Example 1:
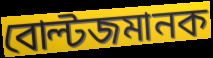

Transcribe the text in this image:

বোল্টজমানক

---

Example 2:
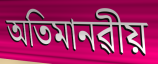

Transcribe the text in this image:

অতিমানৱীয়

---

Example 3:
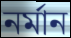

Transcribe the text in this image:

নৰ্মান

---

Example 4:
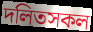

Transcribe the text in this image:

দলিতসকল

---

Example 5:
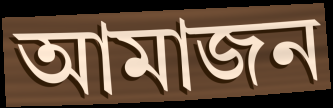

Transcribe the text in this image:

আমাজন